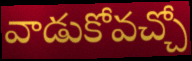
వాడుకోవచ్చో